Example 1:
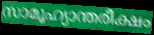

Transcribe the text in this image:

സാമൂഹ്യാന്തരീക്ഷം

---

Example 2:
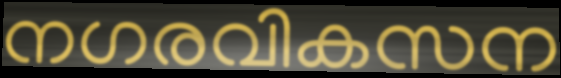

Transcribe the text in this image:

നഗരവികസന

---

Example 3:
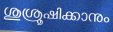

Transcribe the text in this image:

ശുശ്രൂഷിക്കാനും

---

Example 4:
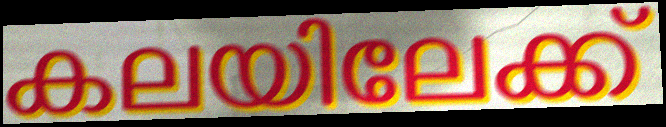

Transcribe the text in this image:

കലയിലേക്ക്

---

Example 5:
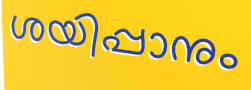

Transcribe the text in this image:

ശയിപ്പാനും